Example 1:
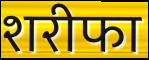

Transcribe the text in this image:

शरीफा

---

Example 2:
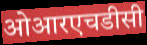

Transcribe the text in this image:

ओआरएचडीसी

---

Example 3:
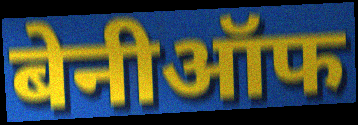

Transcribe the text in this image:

बेनीऑफ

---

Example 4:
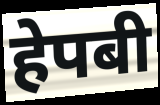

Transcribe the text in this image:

हेपबी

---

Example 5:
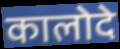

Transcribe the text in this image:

कालोदे